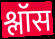
श्लॉस